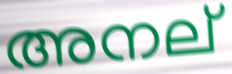
അനല്